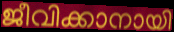
ജീവിക്കാനായി